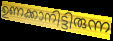
ഉണക്കാനിട്ടിരുന്ന